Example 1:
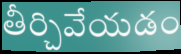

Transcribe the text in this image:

తీర్చివేయడం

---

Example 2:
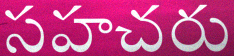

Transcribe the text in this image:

సహచరు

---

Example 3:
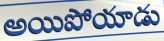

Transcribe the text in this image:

అయిపోయాడు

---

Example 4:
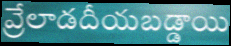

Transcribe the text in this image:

వ్రేలాడదీయబడ్డాయి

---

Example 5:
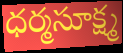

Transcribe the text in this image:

ధర్మసూక్ష్మ